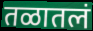
तळातलं